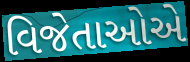
વિજેતાઓએ